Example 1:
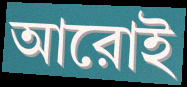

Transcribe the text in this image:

আরোই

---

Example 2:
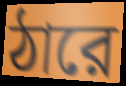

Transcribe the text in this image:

ঠারে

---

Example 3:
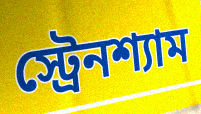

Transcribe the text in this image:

স্ট্রেনশ্যাম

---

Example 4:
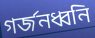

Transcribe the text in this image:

গর্জনধ্বনি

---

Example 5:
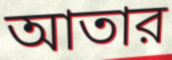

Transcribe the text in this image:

আতার